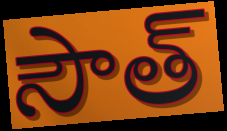
సౌత్